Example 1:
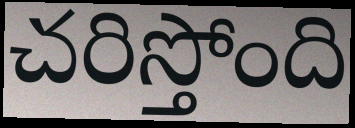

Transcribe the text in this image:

చరిస్తోంది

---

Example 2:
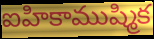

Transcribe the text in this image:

ఐహికాముష్మిక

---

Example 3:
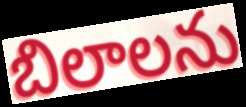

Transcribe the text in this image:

బిలాలను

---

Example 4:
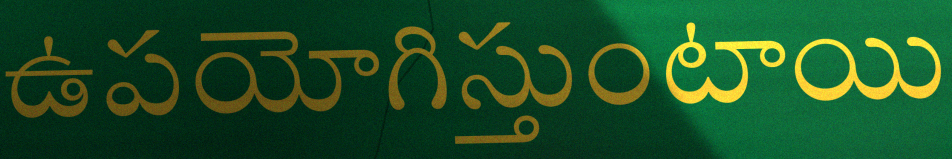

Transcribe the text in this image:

ఉపయోగిస్తుంటాయి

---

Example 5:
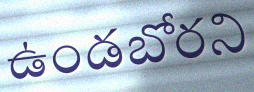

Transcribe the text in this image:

ఉండబోరని